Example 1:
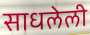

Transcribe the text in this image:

साधलेली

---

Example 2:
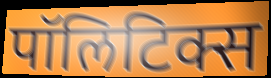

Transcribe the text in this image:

पॉलिटिक्स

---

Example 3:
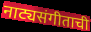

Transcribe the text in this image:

नाट्यसंगीताची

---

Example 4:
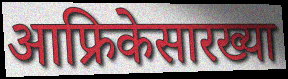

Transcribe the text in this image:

आफ्रिकेसारख्या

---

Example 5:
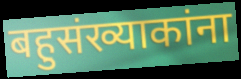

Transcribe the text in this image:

बहुसंख्याकांना